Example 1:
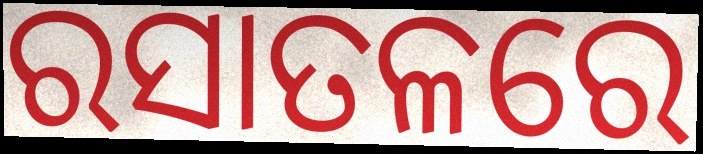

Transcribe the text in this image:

ରସାତଳରେ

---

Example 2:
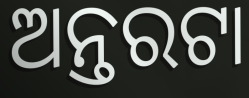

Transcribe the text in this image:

ଅନ୍ତରଟା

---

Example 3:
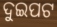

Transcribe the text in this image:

ଦୁଇପଟ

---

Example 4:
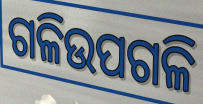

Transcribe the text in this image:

ଗଳିଉପଗଳି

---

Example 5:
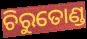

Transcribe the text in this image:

ଚିରୁତୋଣ୍ଡ